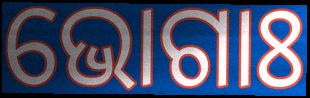
ଭୋଗାଃ